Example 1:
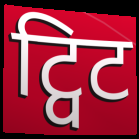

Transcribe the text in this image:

ट्विट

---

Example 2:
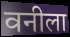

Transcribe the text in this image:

वनीला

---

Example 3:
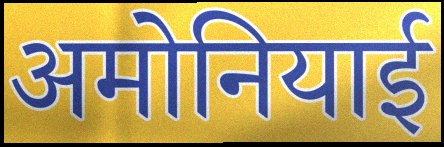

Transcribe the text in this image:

अमोनियाई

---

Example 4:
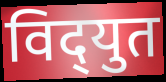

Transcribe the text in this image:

विद्‌युत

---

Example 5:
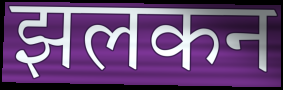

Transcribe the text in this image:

झलकन